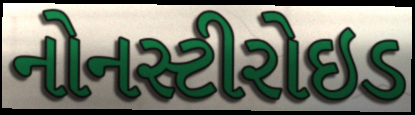
નોનસ્ટીરોઇડ